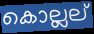
കൊല്ലല്